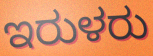
ಇರುಳರು